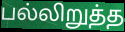
பல்லிறுத்த